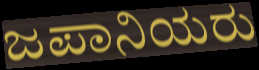
ಜಪಾನಿಯರು